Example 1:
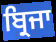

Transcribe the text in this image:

ਬ੍ਰਿਜਾ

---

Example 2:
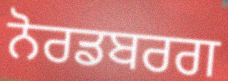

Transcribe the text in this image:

ਨੋਰਡਬਰਗ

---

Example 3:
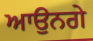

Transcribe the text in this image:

ਆਉਨਗੇ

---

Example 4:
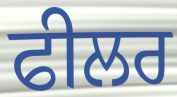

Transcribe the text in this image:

ਫੀਲਰ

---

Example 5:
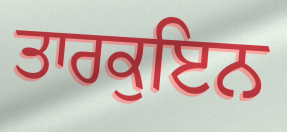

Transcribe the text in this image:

ਤਾਰਕੁਇਨ